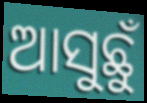
ଆସୁଛୁଁ